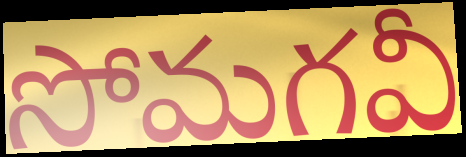
సోమగవీ